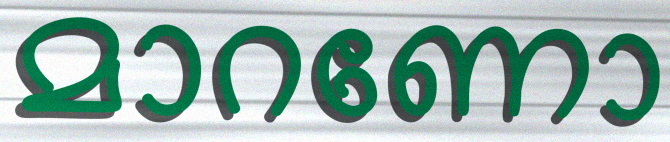
മാറണോ